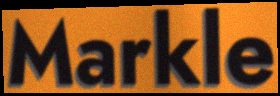
Markle